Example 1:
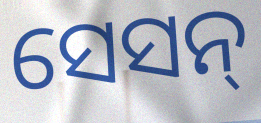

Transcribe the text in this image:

ସେସନ୍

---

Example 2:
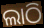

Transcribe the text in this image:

ଲାଠି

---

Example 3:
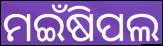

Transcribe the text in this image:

ମଇଁଷିପଲ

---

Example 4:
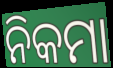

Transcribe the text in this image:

ନିକମା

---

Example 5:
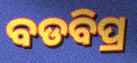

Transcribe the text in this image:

ବଡବିପ୍ର